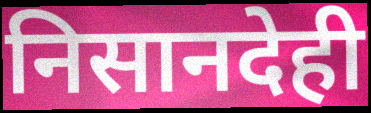
निसानदेही